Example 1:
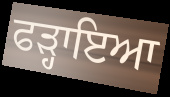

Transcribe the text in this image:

ਫੜ੍ਹਾਇਆ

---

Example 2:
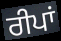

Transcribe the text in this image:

ਰੀਪਾਂ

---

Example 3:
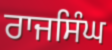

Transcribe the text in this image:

ਰਾਜਸਿੰਘ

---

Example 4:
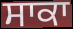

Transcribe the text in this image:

ਸਾਕਾ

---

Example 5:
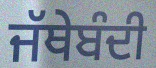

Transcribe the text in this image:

ਜੱਥੇਬੰਦੀ